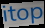
itop